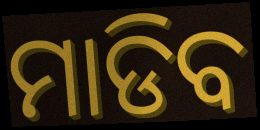
ମାଡିବ